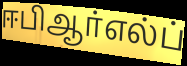
ஈபிஆர்எல்ப்